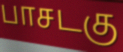
பாசடகு